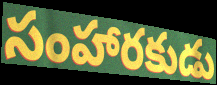
సంహారకుడు